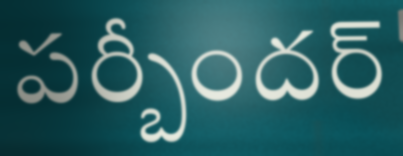
పర్బీందర్